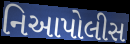
નિઆપોલીસ